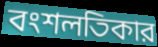
বংশলতিকার